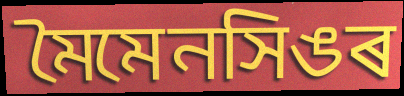
মৈমেনসিঙৰ